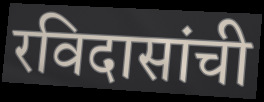
रविदासांची